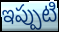
ఇప్పుటి